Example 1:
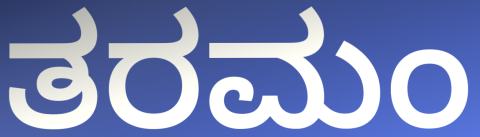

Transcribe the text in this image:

ತರಮಂ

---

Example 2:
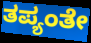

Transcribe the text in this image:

ತಪ್ಯಂತೇ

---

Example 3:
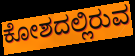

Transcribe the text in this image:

ಕೋಶದಲ್ಲಿರುವ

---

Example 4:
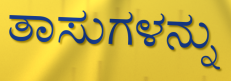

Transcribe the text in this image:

ತಾಸುಗಳನ್ನು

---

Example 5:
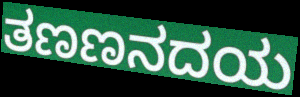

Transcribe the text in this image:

ತಣಣನದಯ